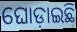
ଘୋଡ଼ାଇଛି